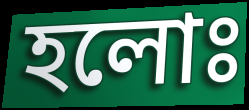
হলোঃ